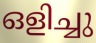
ഒളിച്ചു